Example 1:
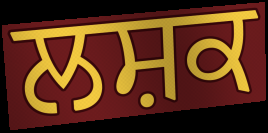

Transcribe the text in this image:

ਲਸ਼ਕ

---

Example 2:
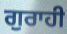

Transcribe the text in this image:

ਗੁਰਾਹੀ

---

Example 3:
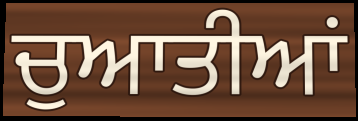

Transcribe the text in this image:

ਚੁਆਤੀਆਂ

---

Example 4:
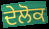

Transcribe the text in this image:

ਦੇਲੋਕ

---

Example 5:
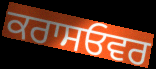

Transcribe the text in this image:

ਕਰਾਸਓਵਰ